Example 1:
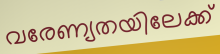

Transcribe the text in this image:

വരേണ്യതയിലേക്ക്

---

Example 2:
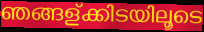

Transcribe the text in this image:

ഞങ്ങള്ക്കിടയിലൂടെ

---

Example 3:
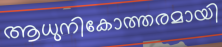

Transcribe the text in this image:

ആധുനികോത്തരമായി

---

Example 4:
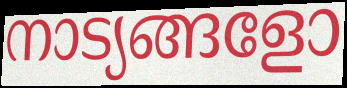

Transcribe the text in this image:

നാട്യങ്ങളോ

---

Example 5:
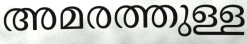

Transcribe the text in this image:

അമരത്തുള്ള